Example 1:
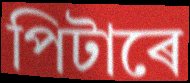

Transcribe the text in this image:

পিটাৰে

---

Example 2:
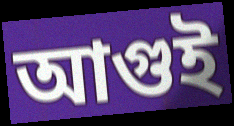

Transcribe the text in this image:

আগুই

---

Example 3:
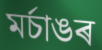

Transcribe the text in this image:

মৰ্চাঙৰ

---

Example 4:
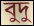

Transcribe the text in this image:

বুদু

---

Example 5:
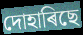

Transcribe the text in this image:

দোহাৰিছে